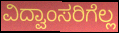
ವಿದ್ವಾಂಸರಿಗೆಲ್ಲ